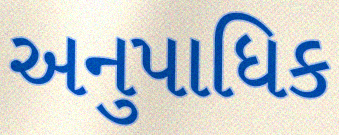
અનુપાધિક